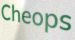
Cheops